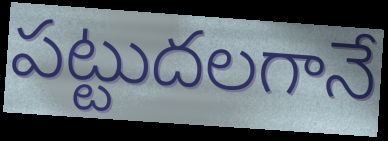
పట్టుదలగానే